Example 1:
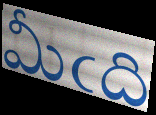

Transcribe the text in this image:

మీఁది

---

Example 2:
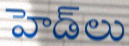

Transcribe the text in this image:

హెడ్‌లు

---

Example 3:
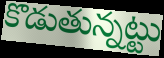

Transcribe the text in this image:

కొడుతున్నట్టు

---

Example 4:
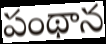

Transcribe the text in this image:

పంథాన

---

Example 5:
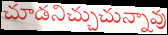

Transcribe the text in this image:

చూడనిచ్చుచున్నావు